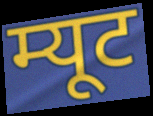
म्यूट